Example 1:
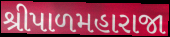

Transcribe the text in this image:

શ્રીપાળમહારાજા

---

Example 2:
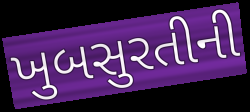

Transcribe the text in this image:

ખુબસુરતીની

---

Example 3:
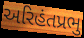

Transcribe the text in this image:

અરિહંતપ્રભુ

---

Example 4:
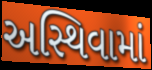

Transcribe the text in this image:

અસ્થિવામાં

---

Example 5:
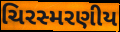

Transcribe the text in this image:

ચિરસ્મરણીય